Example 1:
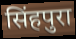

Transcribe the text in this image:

सिंहपुरा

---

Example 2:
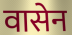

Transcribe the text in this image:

वासेन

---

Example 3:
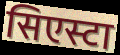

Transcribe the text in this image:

सिएस्टा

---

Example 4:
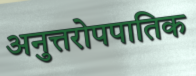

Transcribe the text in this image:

अनुत्तरोपपातिक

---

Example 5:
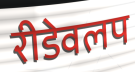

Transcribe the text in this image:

रीडेवलप